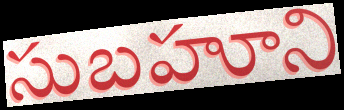
సుబహూని